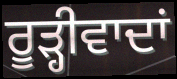
ਰੂੜ੍ਹੀਵਾਦਾਂ